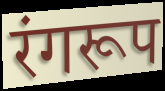
रंगरूप